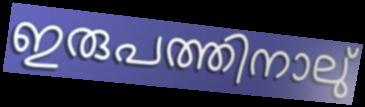
ഇരുപത്തിനാലു്